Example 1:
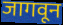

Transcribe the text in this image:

जागवून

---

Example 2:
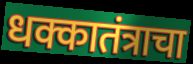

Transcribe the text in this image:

धक्कातंत्राचा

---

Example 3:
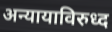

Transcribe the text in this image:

अन्यायाविरुध्द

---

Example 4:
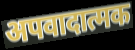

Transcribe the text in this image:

अपवादात्मक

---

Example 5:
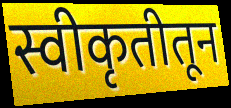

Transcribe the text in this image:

स्वीकृतीतून